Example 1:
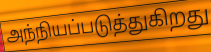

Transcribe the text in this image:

அந்நியப்படுத்துகிறது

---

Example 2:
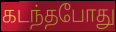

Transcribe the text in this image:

கடந்தபோது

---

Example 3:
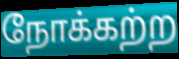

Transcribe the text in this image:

நோக்கற்ற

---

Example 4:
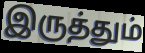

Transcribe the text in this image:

இருத்தும்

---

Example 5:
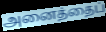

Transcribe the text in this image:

அனைத்தைப்